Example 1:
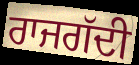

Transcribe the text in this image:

ਰਾਜਗੱਦੀ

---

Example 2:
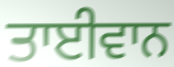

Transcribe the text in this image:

ਤਾਈਵਾਨ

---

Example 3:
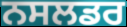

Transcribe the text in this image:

ਨਸਲਡਰ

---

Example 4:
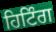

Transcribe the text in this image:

ਹਿਟਿੰਗ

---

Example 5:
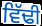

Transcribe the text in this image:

ਵਿੱਢੀ